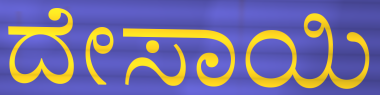
ದೇಸಾಯಿ